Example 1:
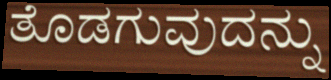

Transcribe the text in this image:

ತೊಡಗುವುದನ್ನು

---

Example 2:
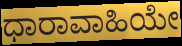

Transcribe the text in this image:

ಧಾರಾವಾಹಿಯೇ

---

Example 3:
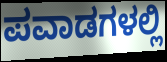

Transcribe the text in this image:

ಪವಾಡಗಳಲ್ಲಿ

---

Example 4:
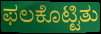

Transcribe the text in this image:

ಫಲಕೊಟ್ಟಿತು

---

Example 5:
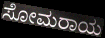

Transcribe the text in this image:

ಸೋಮರಾಯ